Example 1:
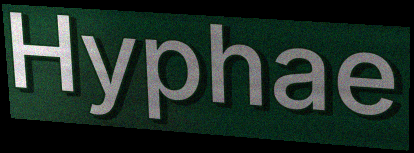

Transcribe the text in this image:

Hyphae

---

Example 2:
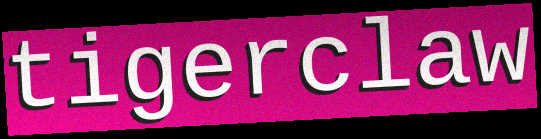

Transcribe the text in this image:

tigerclaw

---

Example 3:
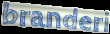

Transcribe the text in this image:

branderi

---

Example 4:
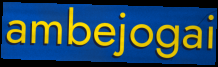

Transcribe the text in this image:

ambejogai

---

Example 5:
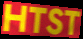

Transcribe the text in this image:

HTST